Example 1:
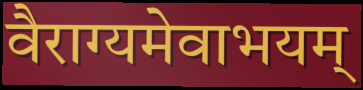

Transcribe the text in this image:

वैराग्यमेवाभयम्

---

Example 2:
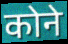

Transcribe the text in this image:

कोने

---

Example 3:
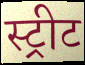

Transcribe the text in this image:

स्ट्रीट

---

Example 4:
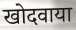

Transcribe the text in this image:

खोदवाया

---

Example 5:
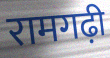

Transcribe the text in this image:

रामगढ़ी